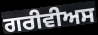
ਗਰੀਵੀਅਸ